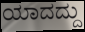
ಯಾದದ್ದು